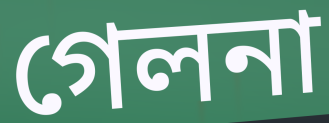
গেলনা